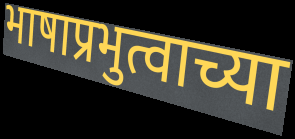
भाषाप्रभुत्वाच्या